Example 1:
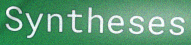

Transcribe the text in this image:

Syntheses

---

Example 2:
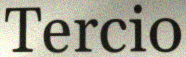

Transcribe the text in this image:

Tercio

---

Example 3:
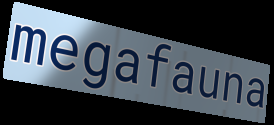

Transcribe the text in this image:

megafauna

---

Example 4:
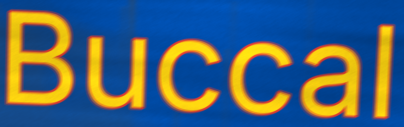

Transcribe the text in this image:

Buccal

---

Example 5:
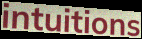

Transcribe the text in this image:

intuitions